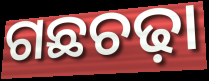
ଗଛଚଢ଼ା